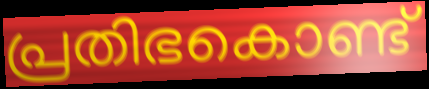
പ്രതിഭകൊണ്ട്